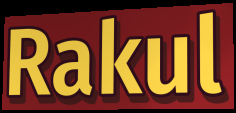
Rakul